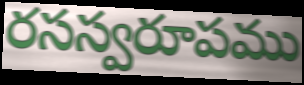
రసస్వరూపము